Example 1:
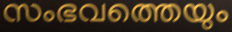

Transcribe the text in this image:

സംഭവത്തെയും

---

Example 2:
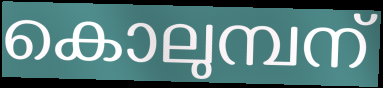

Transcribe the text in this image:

കൊലുമ്പന്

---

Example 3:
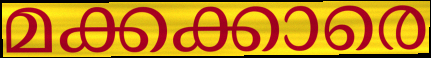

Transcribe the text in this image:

മക്കക്കാരെ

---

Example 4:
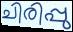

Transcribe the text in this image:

ചിരിപ്പു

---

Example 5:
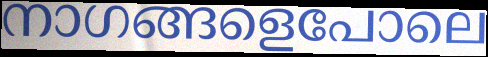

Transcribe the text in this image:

നാഗങ്ങളെപോലെ